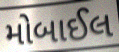
મોબાઈલ